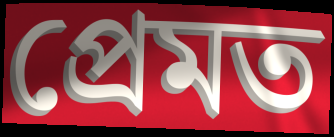
প্ৰেমত